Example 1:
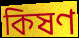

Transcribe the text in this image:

কিষণ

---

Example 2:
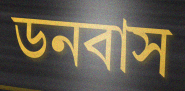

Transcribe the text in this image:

ডনবাস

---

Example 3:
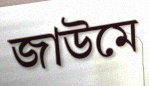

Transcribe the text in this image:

জাউমে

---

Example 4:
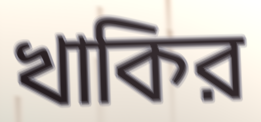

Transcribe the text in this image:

খাকির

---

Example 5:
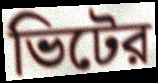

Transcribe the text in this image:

ভিটের